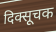
दिक्सूचक